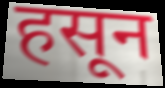
हसून